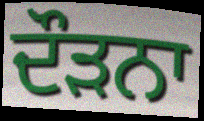
ਦੌੜਨਾ